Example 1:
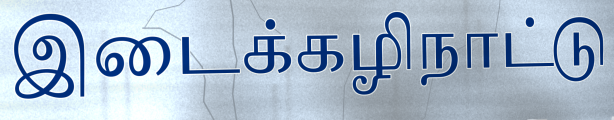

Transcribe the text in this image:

இடைக்கழிநாட்டு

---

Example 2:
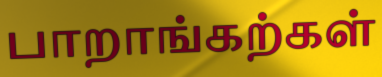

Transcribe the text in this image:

பாறாங்கற்கள்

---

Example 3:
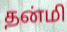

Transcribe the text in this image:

தன்மி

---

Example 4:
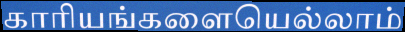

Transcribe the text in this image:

காரியங்களையெல்லாம்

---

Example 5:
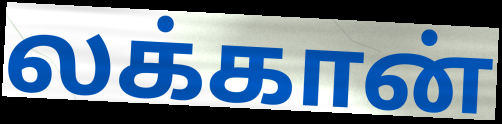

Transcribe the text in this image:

லக்கான்